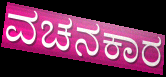
ವಚನಕಾರ